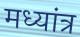
मध्यांत्र